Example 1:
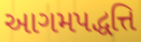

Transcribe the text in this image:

આગમપદ્ધત્તિ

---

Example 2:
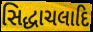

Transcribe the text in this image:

સિદ્ધાચલાદિ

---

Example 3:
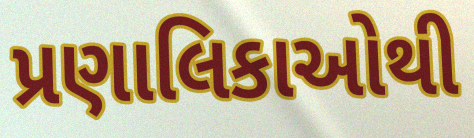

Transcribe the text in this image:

પ્રણાલિકાઓથી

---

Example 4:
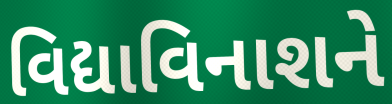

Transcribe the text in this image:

વિદ્યાવિનાશને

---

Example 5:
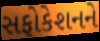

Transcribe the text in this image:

સફોકેશનને